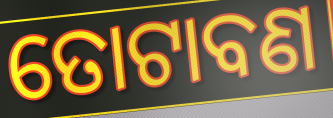
ତୋଟାବଣ